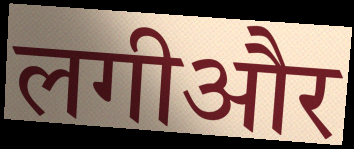
लगीऔर